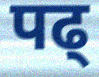
पढ्